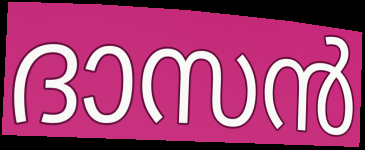
ദാസൻ